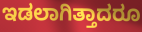
ಇಡಲಾಗಿತ್ತಾದರೂ